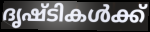
ദൃഷ്ടികൾക്ക്